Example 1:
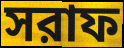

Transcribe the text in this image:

সরাফ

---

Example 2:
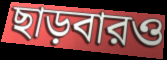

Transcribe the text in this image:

ছাড়বারও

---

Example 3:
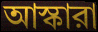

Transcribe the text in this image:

আস্কারা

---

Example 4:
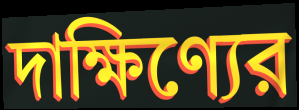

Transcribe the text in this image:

দাক্ষিণ্যের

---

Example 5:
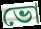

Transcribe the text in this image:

ভো